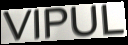
VIPUL